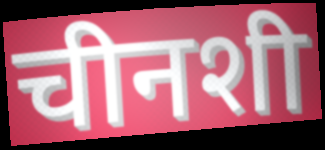
चीनशी